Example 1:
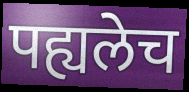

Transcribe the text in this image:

पह्यलेच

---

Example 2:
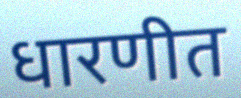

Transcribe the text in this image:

धारणीत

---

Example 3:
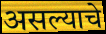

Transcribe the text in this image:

असल्‍याचे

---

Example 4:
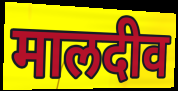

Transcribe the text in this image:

मालदीव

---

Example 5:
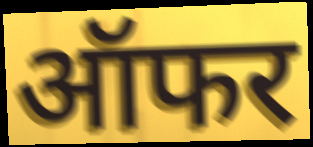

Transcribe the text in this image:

ऑफर